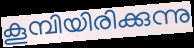
കൂമ്പിയിരിക്കുന്നു